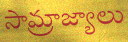
సామ్రాజ్యాలు